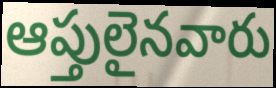
ఆప్తులైనవారు